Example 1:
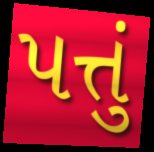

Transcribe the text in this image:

પત્તું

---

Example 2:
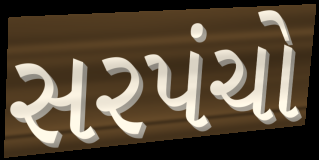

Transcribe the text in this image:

સરપંચો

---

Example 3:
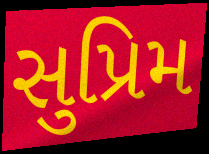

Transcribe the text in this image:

સુપ્રિમ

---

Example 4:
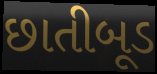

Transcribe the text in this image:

છાતીબૂડ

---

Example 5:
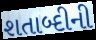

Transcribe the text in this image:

શતાબ્દીની